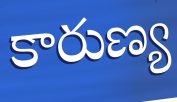
కారుణ్య